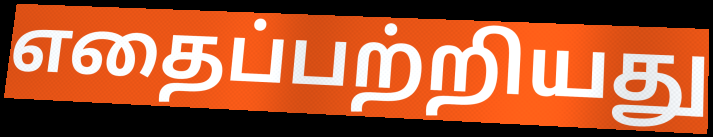
எதைப்பற்றியது